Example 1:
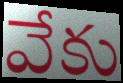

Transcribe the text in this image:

వేకు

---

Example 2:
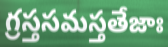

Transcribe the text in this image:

గ్రస్తసమస్తతేజాః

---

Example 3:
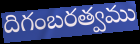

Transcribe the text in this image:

దిగంబరత్వము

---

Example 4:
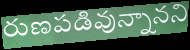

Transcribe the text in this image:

రుణపడివున్నానని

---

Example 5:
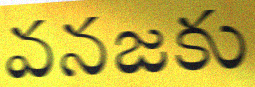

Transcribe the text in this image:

వనజకు